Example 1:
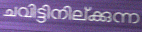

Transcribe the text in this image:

ചവിട്ടിനില്ക്കുന്ന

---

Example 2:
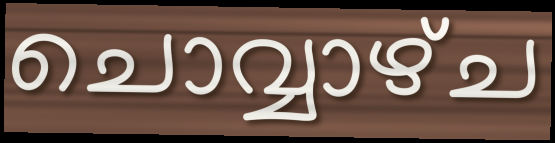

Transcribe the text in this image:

ചൊവ്വാഴ്‌ച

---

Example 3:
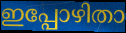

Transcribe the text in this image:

ഇപ്പോഴിതാ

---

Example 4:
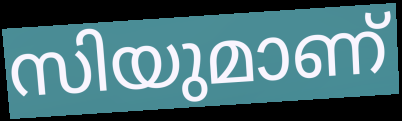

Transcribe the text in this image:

സിയുമാണ്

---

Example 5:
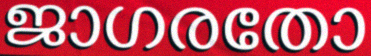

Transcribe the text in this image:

ജാഗരതോ